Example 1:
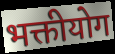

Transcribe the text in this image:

भक्तीयोग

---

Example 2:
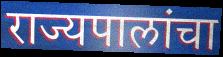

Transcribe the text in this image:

राज्यपालांचा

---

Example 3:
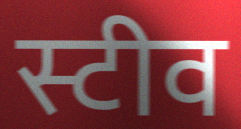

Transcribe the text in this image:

स्टीव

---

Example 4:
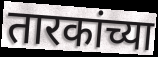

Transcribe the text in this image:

तारकांच्या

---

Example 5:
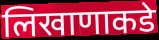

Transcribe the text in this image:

लिखाणाकडे